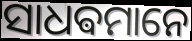
ସାଧଵମାନେ